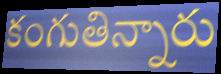
కంగుతిన్నారు